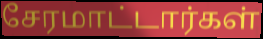
சேரமாட்டார்கள்